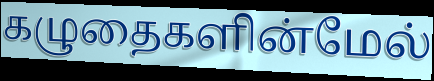
கழுதைகளின்மேல்